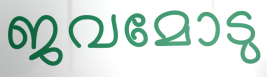
ജവമോടു